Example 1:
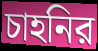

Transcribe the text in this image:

চাহনির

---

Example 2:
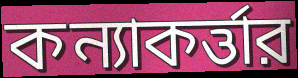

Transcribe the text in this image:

কন্যাকর্ত্তার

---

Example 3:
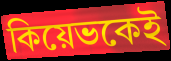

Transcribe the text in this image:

কিয়েভকেই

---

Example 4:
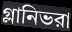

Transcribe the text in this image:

গ্লানিভরা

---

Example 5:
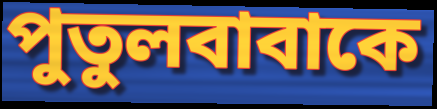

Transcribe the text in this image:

পুতুলবাবাকে